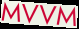
MVVM